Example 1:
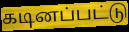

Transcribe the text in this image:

கடினப்பட்டு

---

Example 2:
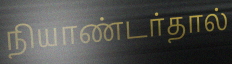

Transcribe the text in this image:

நியாண்டர்தால்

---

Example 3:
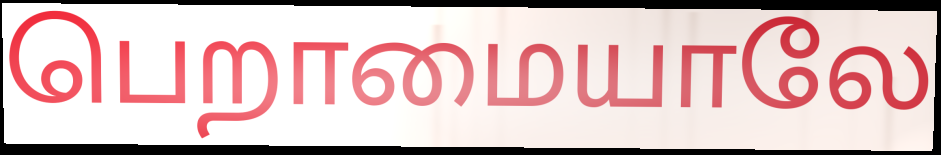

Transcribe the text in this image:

பெறாமையாலே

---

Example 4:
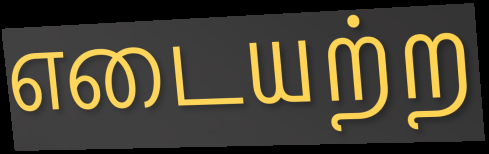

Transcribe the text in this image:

எடையற்ற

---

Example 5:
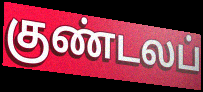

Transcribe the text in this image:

குண்டலப்